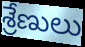
శ్రేణులు